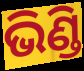
ଭିଣ୍ଡି